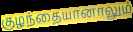
குழந்தையானாலும்